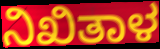
ನಿಖಿತಾಳ